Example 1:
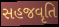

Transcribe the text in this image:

સહજવૃતિ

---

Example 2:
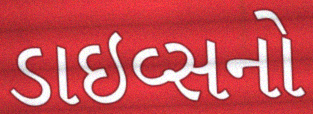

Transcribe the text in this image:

ડાઇવ્સનો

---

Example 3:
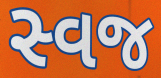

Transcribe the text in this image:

સ્વજ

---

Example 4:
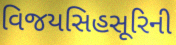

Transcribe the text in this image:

વિજયસિહસૂરિની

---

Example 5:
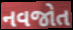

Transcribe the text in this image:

નવજોત